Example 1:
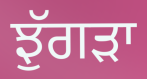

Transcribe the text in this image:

ਝੁੱਗੜਾ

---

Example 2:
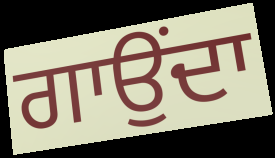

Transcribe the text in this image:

ਗਾਉਂਦਾ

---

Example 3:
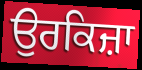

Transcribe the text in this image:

ਉਰਕਿਜ਼ਾ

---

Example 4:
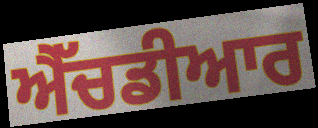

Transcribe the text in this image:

ਐੱਚਡੀਆਰ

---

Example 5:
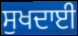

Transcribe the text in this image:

ਸੁਖਦਾਈ